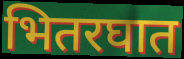
भितरघात